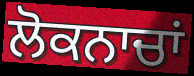
ਲੋਕਨਾਚਾਂ